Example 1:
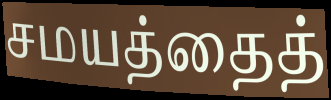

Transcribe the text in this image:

சமயத்தைத்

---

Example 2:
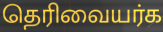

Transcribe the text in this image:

தெரிவையர்க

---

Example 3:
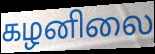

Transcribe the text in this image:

கழனிலை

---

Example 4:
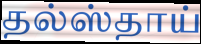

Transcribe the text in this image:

தல்ஸ்தாய்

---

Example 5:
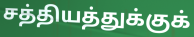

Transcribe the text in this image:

சத்தியத்துக்குக்